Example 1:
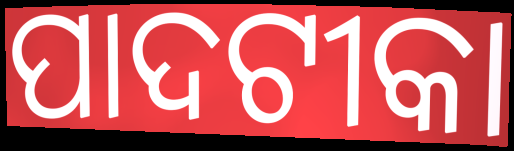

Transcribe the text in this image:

ପାଦଟୀକା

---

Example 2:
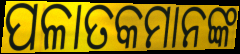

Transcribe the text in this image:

ପଳାତକମାନଙ୍କ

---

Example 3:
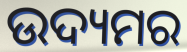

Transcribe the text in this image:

ଉଦ୍ୟମର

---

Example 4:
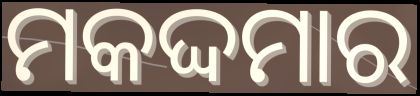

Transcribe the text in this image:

ମକଦ୍ଦମାର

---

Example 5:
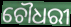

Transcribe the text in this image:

ଚୌଧରୀ